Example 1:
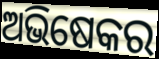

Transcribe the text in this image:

ଅଭିଷେକର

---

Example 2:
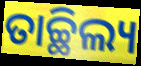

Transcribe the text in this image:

ତାଚ୍ଛିଲ୍ୟ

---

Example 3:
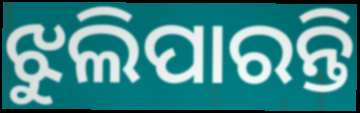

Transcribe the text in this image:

ଝୁଲିପାରନ୍ତି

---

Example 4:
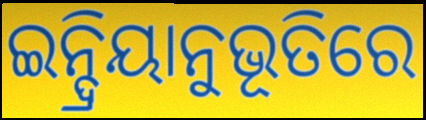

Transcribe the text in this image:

ଇନ୍ଦ୍ରିୟାନୁଭୂତିରେ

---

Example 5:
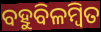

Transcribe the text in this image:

ବହୁବିଳମ୍ବିତ